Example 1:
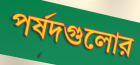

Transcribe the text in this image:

পর্ষদগুলোর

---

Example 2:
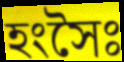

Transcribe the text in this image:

হংসৈঃ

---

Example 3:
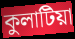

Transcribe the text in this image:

কুলাটিয়া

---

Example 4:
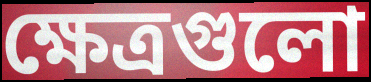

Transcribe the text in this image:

ক্ষেত্রগুলো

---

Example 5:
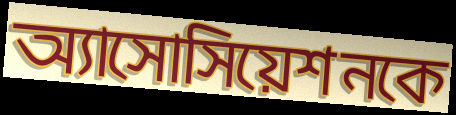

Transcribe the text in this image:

অ্যাসোসিয়েশনকে